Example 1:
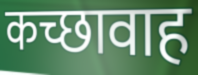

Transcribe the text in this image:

कच्छावाह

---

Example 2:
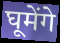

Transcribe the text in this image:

घूमेंगे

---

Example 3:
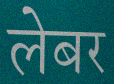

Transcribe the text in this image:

लेबर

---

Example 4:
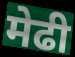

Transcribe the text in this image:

मेढी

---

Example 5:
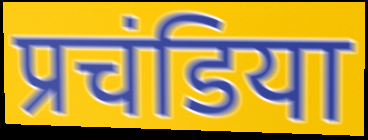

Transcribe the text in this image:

प्रचंडिया